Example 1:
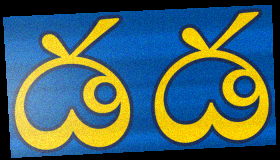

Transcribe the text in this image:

డడ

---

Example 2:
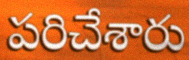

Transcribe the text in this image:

పరిచేశారు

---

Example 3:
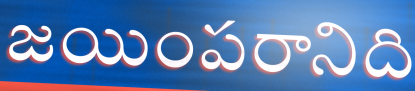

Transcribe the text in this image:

జయింపరానిది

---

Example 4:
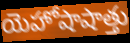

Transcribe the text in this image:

యెహోషాషాత్తు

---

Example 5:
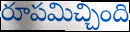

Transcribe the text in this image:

రూపమిచ్చింది